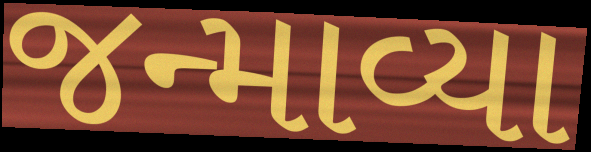
જન્માવ્યા